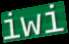
iwi